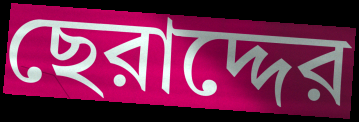
ছেরাদ্দের